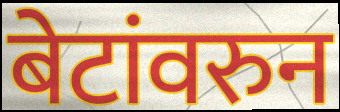
बेटांवरुन